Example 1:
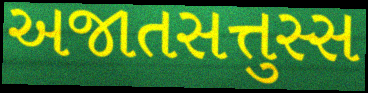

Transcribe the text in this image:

અજાતસત્તુસ્સ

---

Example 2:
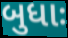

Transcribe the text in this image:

બુધાઃ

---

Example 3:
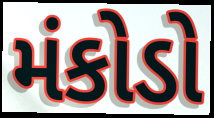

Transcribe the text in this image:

મંકોડો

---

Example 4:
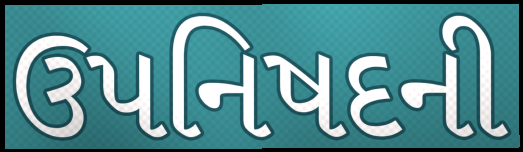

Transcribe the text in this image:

ઉપનિષદની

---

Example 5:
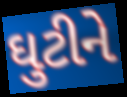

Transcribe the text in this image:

ઘુટીને